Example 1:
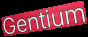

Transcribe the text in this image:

Gentium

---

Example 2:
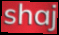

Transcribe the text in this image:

shaj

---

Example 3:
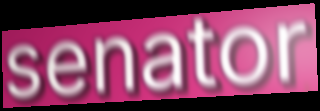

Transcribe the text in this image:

senator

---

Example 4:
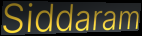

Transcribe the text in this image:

Siddaram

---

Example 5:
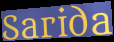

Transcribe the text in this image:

Sarida